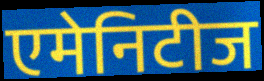
एमेनिटीज